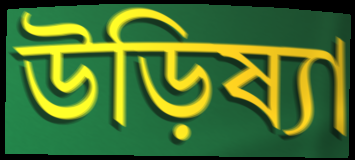
উড়িষ্যা